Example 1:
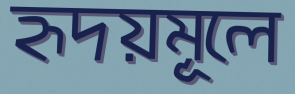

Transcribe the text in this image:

হৃদয়মূলে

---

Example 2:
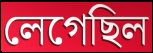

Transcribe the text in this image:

লেগেছিল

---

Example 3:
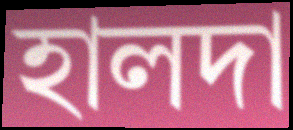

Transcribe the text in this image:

হালদা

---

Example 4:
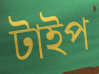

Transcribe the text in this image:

টাইপ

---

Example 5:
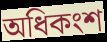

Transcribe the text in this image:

অধিকংশ